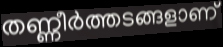
തണ്ണീർത്തടങ്ങളാണ്